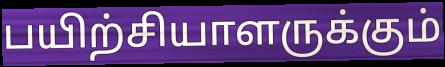
பயிற்சியாளருக்கும்